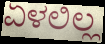
ಏಳಲಿಲ್ಲ